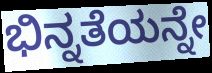
ಭಿನ್ನತೆಯನ್ನೇ